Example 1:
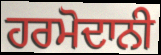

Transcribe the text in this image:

ਹਰਮੋਦਾਨੀ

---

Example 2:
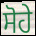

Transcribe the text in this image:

ਸੋਹੇ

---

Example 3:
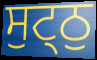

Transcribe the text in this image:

ਸੁਟ੍ਠੁ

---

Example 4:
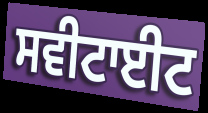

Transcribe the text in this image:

ਸਵੀਟਾਈਟ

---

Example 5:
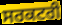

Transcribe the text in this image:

ਸਰਕਟਰੀ